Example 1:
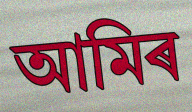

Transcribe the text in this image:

আমিৰ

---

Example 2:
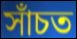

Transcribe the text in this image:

সাঁচত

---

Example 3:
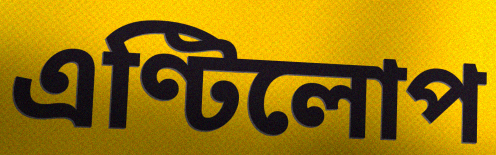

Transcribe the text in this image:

এণ্টিলোপ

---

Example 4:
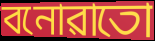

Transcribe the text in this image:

বনোৱাতো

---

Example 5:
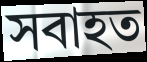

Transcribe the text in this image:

সবাহত